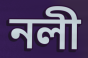
নলী